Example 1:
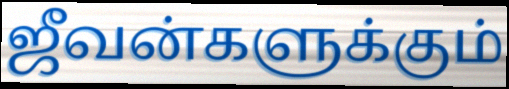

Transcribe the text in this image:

ஜீவன்களுக்கும்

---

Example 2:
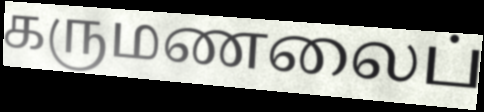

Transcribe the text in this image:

கருமணலைப்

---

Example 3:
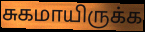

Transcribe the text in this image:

சுகமாயிருக்க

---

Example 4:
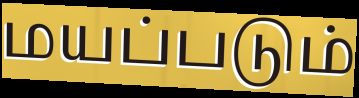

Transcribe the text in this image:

மயப்படும்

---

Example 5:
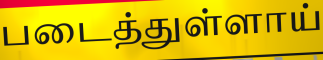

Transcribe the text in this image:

படைத்துள்ளாய்